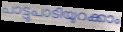
പാട്ടുപാടിയുറക്കാം